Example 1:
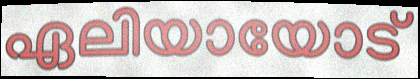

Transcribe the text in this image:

ഏലിയായോട്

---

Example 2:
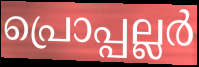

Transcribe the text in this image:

പ്രൊപ്പല്ലർ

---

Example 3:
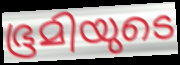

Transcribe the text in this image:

ഭൂമിയുടെ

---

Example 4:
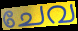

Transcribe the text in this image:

ചേവ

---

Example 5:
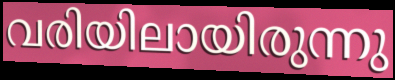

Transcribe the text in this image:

വരിയിലായിരുന്നു